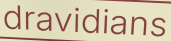
dravidians